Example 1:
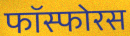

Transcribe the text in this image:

फॉस्फोरस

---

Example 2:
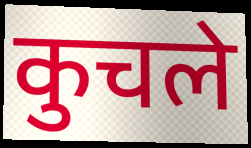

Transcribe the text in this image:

कुचले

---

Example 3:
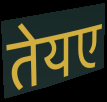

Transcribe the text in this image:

तेयए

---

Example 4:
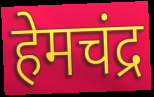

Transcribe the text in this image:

हेमचंद्र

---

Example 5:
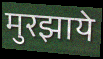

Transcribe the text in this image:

मुरझाये